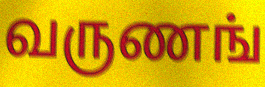
வருணங்